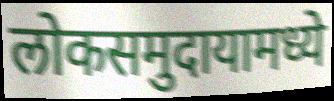
लोकसमुदायामध्ये